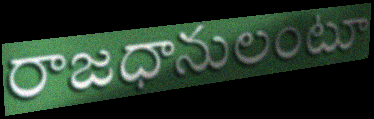
రాజధానులంటూ